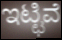
ಇಟ್ಟಿವೆ